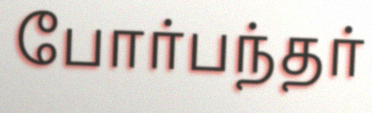
போர்பந்தர்